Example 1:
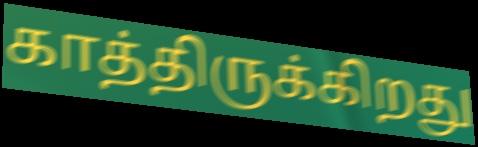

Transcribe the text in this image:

காத்திருக்கிறது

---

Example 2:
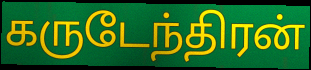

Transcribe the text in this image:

கருடேந்திரன்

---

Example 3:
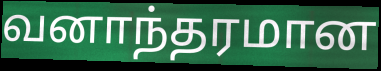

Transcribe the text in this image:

வனாந்தரமான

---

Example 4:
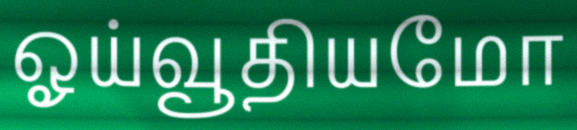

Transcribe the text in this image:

ஓய்வூதியமோ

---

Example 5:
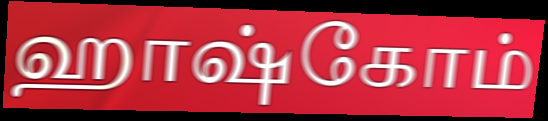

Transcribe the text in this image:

ஹாஷ்கோம்